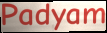
Padyam